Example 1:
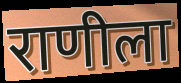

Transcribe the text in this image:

राणीला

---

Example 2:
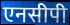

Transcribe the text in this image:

एनसीपी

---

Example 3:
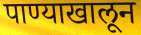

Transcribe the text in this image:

पाण्याखालून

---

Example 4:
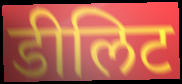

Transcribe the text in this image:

डीलिट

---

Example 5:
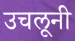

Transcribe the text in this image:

उचलूनी